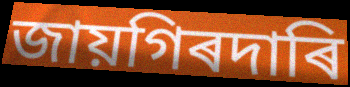
জায়গিৰদাৰি